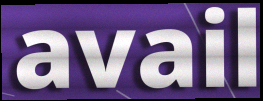
avail